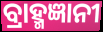
ବ୍ରାହ୍ମଜ୍ଞାନୀ